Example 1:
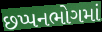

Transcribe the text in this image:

છપ્પનભોગમાં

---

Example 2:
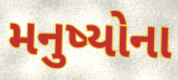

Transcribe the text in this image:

મનુષ્યોના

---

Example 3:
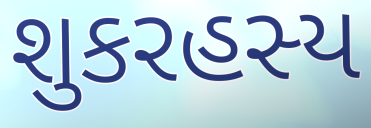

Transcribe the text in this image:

શુકરહસ્ય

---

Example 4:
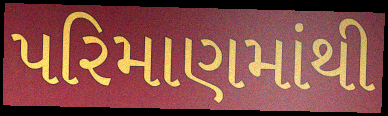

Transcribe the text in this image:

પરિમાણમાંથી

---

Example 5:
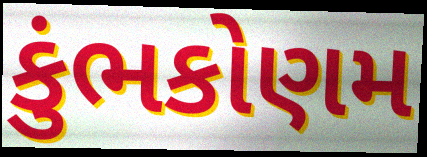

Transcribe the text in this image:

કુંભકોણમ